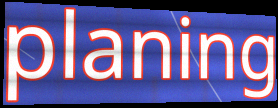
planing